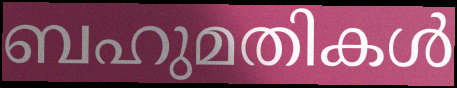
ബഹുമതികൾ